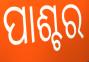
ପାଶ୍ଚର